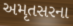
અમૃતસરના